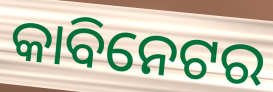
କାବିନେଟର